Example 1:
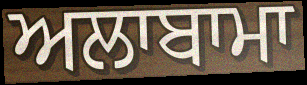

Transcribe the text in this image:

ਅਲਾਬਾਮਾ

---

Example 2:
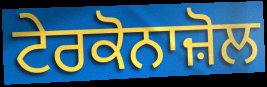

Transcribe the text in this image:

ਟੇਰਕੋਨਾਜ਼ੋਲ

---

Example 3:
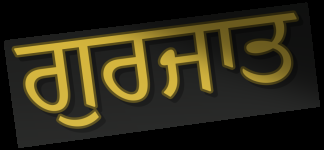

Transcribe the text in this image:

ਗੁਰਜਾਤ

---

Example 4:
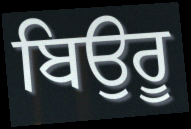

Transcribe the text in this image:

ਬਿਉਰੂ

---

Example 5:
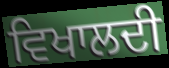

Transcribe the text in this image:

ਵਿਖਾਲਦੀ